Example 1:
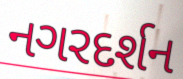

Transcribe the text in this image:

નગરદર્શન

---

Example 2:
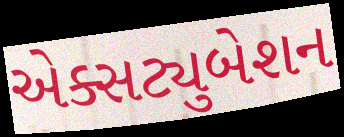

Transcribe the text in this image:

એક્સટ્યુબેશન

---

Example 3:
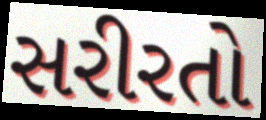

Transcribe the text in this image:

સરીરતો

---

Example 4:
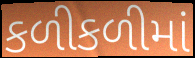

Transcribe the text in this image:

કળીકળીમાં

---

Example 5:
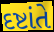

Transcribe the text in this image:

દષ્ટાંતે